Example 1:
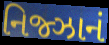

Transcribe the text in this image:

નિજ્ઝાનં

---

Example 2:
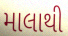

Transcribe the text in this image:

માલાથી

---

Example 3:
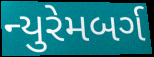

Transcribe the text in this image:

ન્યુરેમબર્ગ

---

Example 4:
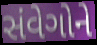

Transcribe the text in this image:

સંવેગોને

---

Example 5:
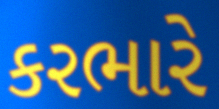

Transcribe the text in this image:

કરભારે